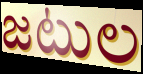
జటుల